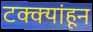
टक्क्यांहून